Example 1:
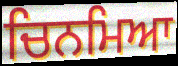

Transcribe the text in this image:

ਚਿਨਮਿਆ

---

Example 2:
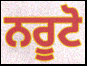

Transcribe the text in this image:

ਨਰੂਟੋ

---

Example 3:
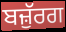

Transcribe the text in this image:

ਬਜ਼ੁੱਰਗ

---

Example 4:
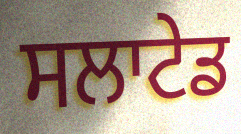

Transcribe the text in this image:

ਸਲਾਟੇਡ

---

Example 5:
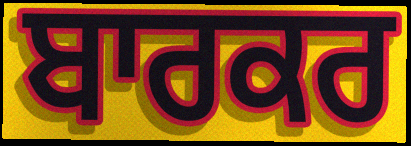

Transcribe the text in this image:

ਬਾਰਕਰ